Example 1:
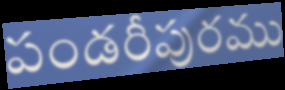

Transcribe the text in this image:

పండరీపురము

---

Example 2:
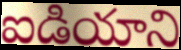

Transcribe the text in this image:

ఐడియాని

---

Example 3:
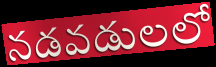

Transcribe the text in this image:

నడవడులలో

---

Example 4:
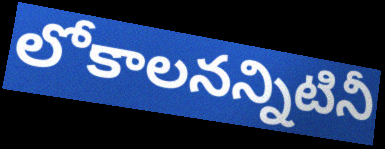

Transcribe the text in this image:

లోకాలనన్నిటినీ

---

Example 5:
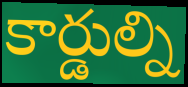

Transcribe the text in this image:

కార్డుల్ని